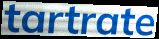
tartrate